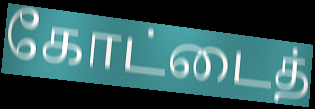
கோட்டைத்